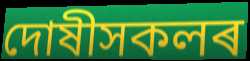
দোষীসকলৰ